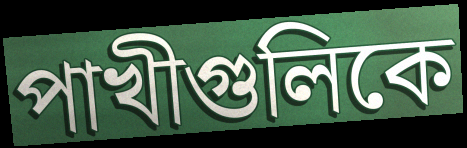
পাখীগুলিকে